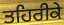
ਤਹਿਰੀਕੇ